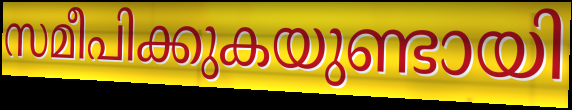
സമീപിക്കുകയുണ്ടായി